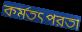
কর্মতৎপরতা